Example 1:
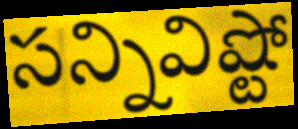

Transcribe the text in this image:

సన్నివిష్టో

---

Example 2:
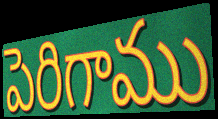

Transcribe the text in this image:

పెరిగాము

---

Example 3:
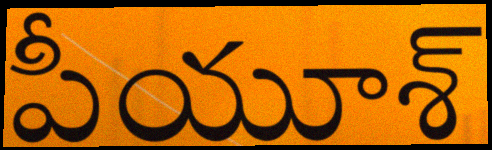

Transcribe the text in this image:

పీయూశ్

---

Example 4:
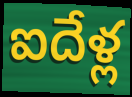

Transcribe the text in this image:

ఐదేళ్ల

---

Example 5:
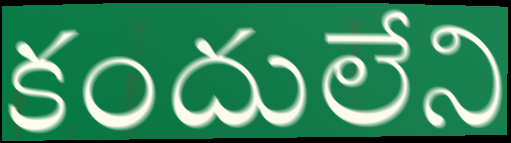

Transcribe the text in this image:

కందులేని